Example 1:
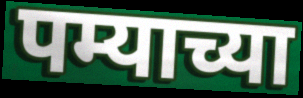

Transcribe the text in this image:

पम्याच्या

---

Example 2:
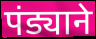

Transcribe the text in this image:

पंड्याने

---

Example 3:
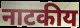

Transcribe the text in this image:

नाटकीय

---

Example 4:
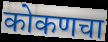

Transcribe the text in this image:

कोकणचा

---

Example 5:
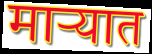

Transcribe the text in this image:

माऱ्यात